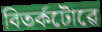
বিতৰ্কটোৱে